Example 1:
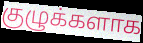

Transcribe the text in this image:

குழுக்களாக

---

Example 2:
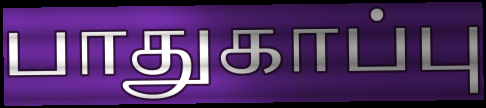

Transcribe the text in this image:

பாதுகாப்பு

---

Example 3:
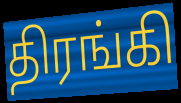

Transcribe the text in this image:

திரங்கி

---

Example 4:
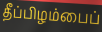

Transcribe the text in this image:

தீப்பிழம்பைப்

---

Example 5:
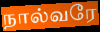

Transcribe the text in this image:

நால்வரே